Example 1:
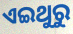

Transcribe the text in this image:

ଏଇଥୁରୁ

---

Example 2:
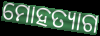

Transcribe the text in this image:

ମୋହତ୍ୟାଗ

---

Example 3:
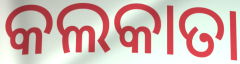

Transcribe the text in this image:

କଲକାତା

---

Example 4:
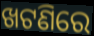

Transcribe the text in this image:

ଖଟଣିରେ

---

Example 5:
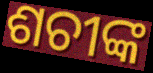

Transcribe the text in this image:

ଶଚୀଙ୍କ